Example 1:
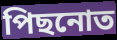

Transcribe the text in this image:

পিছনোত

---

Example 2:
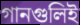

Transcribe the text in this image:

গানগুলিই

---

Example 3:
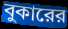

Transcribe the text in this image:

বুকারের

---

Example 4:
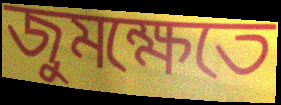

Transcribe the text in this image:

জুমক্ষেতে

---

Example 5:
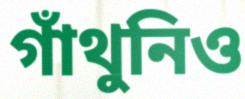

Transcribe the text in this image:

গাঁথুনিও